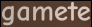
gamete